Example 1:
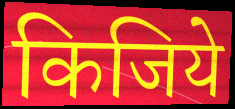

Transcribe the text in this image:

किजिये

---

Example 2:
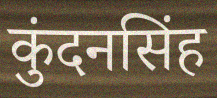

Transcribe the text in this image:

कुंदनसिंह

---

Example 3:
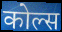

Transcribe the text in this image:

कोल्स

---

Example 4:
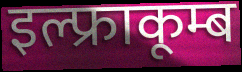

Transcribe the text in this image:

इल्फ्राकूम्ब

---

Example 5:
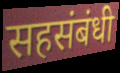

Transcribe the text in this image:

सहसंबंधी